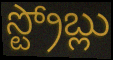
స్ట్రోబ్లు